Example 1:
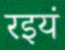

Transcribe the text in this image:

रइयं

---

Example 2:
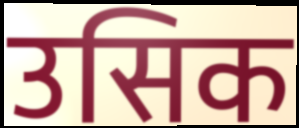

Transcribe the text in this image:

उसिक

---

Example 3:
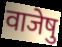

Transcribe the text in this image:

वाजेषु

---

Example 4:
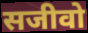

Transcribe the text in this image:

सजीवो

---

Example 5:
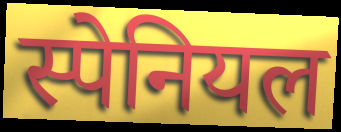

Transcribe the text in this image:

स्पेनियल